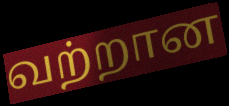
வற்றான